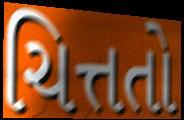
ચિત્તતો